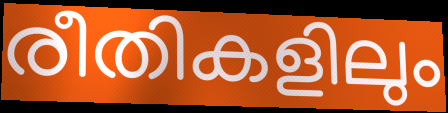
രീതികളിലും